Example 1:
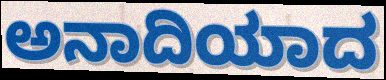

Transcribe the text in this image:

ಅನಾದಿಯಾದ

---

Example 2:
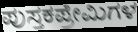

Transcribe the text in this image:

ಪುಸ್ತಕಪ್ರೇಮಿಗಳ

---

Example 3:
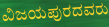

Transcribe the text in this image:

ವಿಜಯಪುರದವರು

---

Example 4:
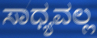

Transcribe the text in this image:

ಸಾಧ್ಯವಲ್ಲ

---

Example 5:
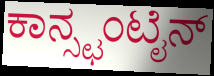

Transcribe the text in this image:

ಕಾನ್ಸ್ಟಂಟೈನ್